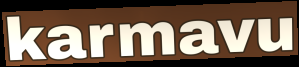
karmavu